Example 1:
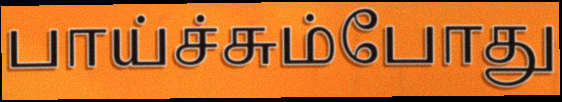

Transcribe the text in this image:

பாய்ச்சும்போது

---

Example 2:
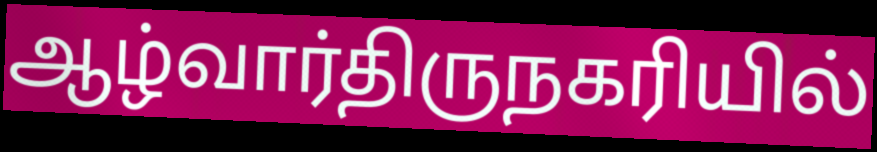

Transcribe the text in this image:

ஆழ்வார்திருநகரியில்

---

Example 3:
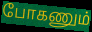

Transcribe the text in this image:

போகணும்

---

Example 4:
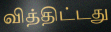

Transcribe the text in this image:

வித்திட்டது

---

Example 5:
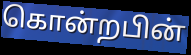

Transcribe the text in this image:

கொன்றபின்